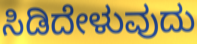
ಸಿಡಿದೇಳುವುದು